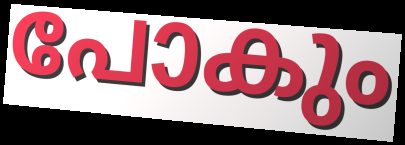
പോകും